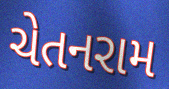
ચેતનરામ